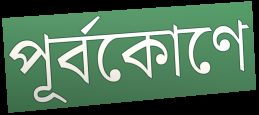
পূর্বকোণে